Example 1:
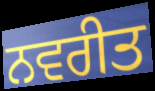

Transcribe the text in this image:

ਨਵਰੀਤ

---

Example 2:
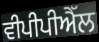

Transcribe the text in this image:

ਵੀਪੀਪੀਐੱਲ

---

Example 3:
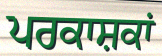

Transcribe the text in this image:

ਪਰਕਾਸ਼ਕਾਂ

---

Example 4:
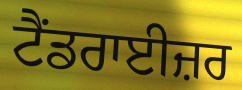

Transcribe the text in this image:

ਟੈਂਡਰਾਈਜ਼ਰ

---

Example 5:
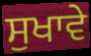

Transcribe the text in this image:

ਸੁਖਾਵੇ